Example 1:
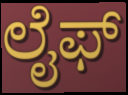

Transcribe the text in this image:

ಲೈಫ್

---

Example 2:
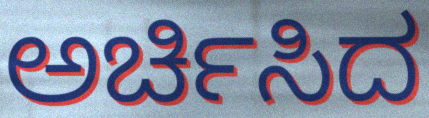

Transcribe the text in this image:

ಅರ್ಚಿಸಿದ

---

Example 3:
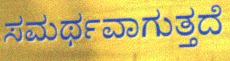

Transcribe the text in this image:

ಸಮರ್ಥವಾಗುತ್ತದೆ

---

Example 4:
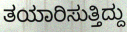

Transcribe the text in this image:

ತಯಾರಿಸುತ್ತಿದ್ದು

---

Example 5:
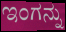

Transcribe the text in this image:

ಇಂಗನ್ನು